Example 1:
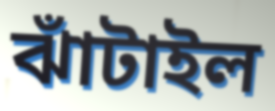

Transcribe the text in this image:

ঝাঁটাইল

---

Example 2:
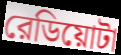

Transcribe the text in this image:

রেডিয়োটা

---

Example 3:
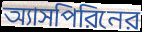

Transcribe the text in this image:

অ্যাসপিরিনের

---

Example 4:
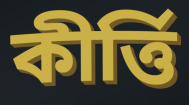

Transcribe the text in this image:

কীর্ত্তি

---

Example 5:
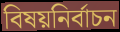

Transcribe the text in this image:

বিষয়নির্বাচন